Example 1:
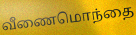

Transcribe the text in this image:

வீணைமொந்தை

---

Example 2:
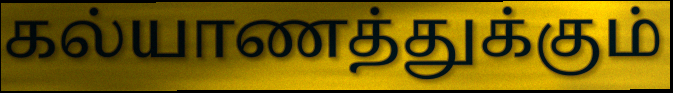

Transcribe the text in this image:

கல்யாணத்துக்கும்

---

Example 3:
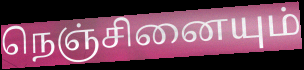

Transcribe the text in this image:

நெஞ்சினையும்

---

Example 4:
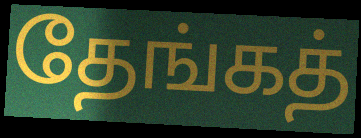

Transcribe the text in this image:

தேங்கத்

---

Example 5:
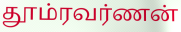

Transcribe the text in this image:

தூம்ரவர்ணன்